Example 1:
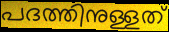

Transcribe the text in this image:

പദത്തിനുള്ളത്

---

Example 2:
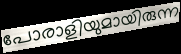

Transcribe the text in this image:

പോരാളിയുമായിരുന്ന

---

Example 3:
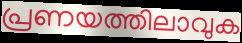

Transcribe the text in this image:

പ്രണയത്തിലാവുക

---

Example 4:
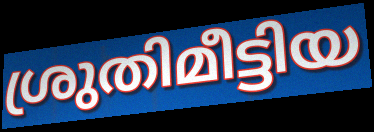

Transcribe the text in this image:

ശ്രുതിമീട്ടിയ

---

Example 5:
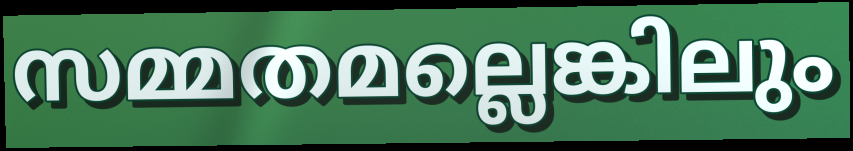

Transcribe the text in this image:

സമ്മതമല്ലെങ്കിലും